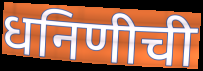
धनिणीची